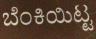
ಬೆಂಕಿಯಿಟ್ಟ